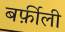
बर्फ़ीली